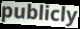
publicly